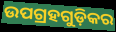
ଉପଗ୍ରହଗୁଡ଼ିକର